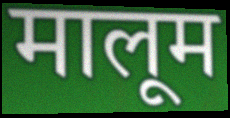
मालूम